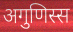
अगुणिस्स